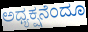
ಅಧ್ಯಕ್ಷನೆಂದೂ